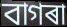
বাগৰা